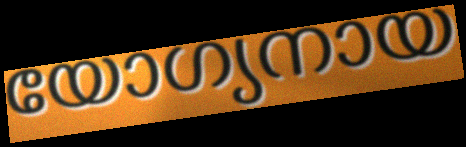
യോഗ്യനായ